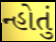
ન્હોતું